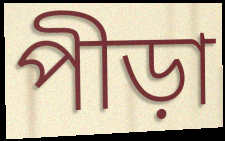
পীড়া